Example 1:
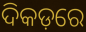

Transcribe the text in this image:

ଦିକଡ଼ରେ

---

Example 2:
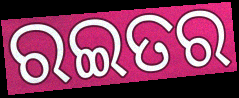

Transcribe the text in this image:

ରଇତର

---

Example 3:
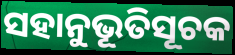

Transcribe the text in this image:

ସହାନୁଭୂତିସୂଚକ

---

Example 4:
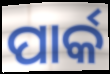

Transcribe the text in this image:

ପାର୍କ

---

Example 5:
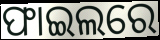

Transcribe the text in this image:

ଫାଇଲରେ